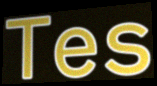
Tes